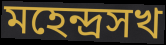
মহেন্দ্রসখ